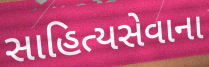
સાહિત્યસેવાના